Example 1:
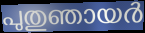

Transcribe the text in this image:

പുതുഞായർ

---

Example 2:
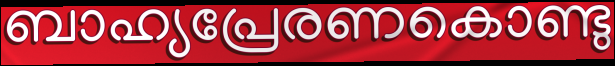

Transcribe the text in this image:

ബാഹ്യപ്രേരണകൊണ്ടു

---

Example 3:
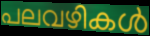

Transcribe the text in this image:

പലവഴികൾ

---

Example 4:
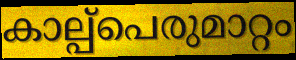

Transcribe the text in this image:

കാല്പ്പെരുമാറ്റം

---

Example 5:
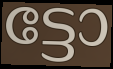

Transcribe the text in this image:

ട്ടോ